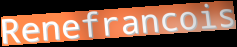
Renefrancois